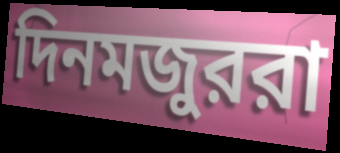
দিনমজুররা